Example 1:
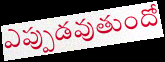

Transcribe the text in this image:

ఎప్పుడవుతుందో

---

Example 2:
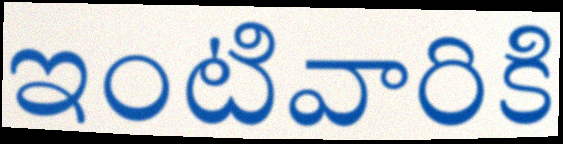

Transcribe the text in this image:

ఇంటివారికి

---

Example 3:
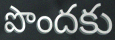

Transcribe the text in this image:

పొందకు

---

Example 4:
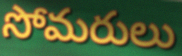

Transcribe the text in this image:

సోమరులు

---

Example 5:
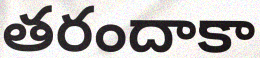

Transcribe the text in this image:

తరందాకా